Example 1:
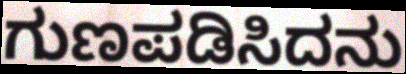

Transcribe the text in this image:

ಗುಣಪಡಿಸಿದನು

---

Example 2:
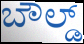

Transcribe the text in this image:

ಬೌಲ್ಡ್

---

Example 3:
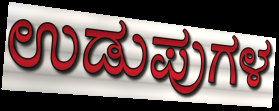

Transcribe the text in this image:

ಉಡುಪುಗಳ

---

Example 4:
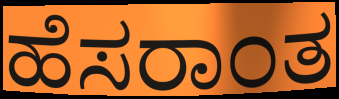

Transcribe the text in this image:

ಹೆಸರಾಂತ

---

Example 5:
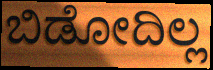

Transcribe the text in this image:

ಬಿಡೋದಿಲ್ಲ